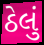
ઠેલું